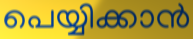
പെയ്യിക്കാൻ